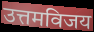
उत्तमविजय